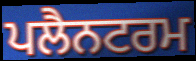
ਪਲੈਨਟਰਮ